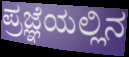
ಪ್ರಜ್ಞೆಯಲ್ಲಿನ